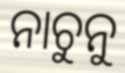
ନାଚୁନୁ